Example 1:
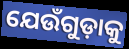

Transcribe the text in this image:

ଯେଉଁଗୁଡ଼ାକୁ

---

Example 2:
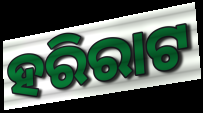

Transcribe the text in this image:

ହରିରାଟ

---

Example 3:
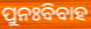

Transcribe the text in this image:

ପୁନଃବିବାହ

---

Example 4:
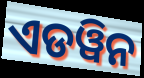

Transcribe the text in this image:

ଏଡୱିନ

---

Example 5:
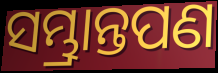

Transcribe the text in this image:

ସମ୍ଭ୍ରାନ୍ତପଣ